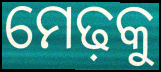
ମେଢ଼କୁ